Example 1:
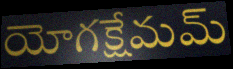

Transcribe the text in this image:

యోగక్షేమమ్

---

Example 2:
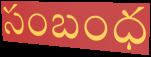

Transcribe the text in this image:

సంబంధ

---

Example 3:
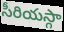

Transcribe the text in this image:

సీరియస్గా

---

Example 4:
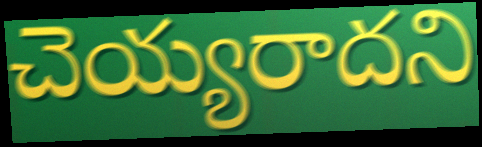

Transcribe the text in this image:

చెయ్యరాదని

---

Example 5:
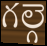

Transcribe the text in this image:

గల్గె